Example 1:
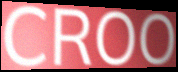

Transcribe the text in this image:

CROO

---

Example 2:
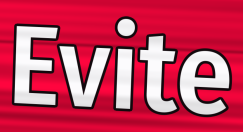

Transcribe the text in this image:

Evite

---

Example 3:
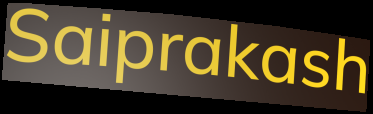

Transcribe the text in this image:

Saiprakash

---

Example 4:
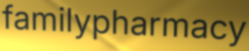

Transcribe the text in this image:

familypharmacy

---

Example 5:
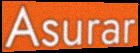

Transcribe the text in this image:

Asurar